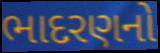
ભાદરણનો